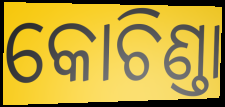
କୋଚିଣ୍ଡା